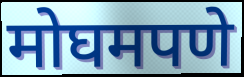
मोघमपणे